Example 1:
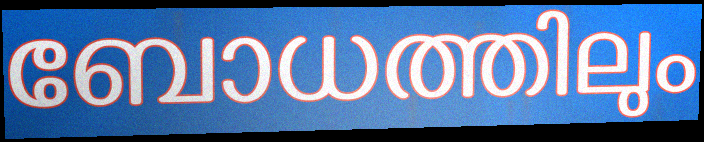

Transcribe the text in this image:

ബോധത്തിലും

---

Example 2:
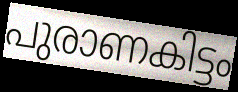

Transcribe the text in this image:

പുരാണകിട്ടം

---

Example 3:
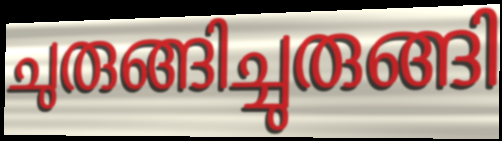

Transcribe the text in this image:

ചുരുങ്ങിച്ചുരുങ്ങി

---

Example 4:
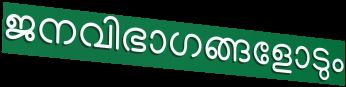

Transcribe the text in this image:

ജനവിഭാഗങ്ങളോടും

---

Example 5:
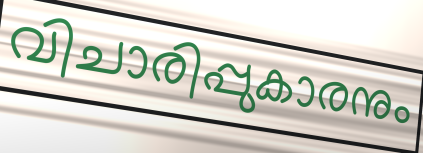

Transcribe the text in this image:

വിചാരിപ്പുകാരനും